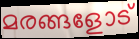
മരങ്ങളോട്